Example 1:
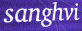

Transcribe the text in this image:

sanghvi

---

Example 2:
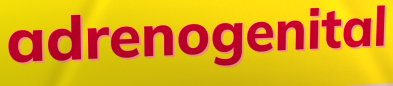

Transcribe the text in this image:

adrenogenital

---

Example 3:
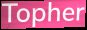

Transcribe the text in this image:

Topher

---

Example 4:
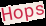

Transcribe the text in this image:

Hops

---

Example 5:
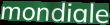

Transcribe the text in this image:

mondiale